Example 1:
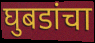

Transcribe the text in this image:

घुबडांचा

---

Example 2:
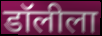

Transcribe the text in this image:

डॉलीला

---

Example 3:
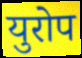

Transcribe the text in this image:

युरोप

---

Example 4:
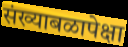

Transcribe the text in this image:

संख्याबळापेक्षा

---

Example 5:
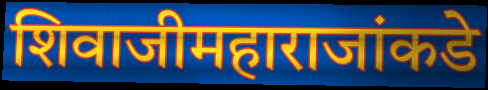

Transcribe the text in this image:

शिवाजीमहाराजांकडे